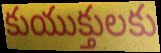
కుయుక్తులకు